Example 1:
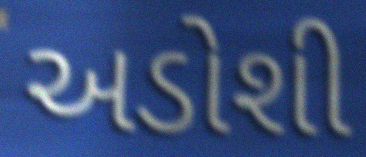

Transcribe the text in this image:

અડોશી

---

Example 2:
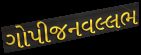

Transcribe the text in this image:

ગોપીજનવલ્લભ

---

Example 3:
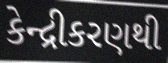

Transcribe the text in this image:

કેન્દ્રીકરણથી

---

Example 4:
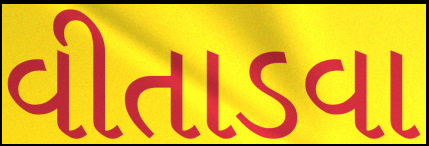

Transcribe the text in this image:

વીતાડવા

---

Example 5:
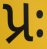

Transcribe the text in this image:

પ્રઃ